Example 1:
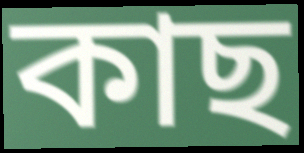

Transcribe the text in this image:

কাছ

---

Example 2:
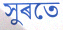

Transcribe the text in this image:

সুৰতে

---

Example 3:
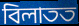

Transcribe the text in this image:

বিলাতত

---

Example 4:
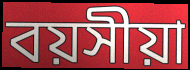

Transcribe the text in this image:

বয়সীয়া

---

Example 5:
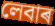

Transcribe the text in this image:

লেবাৰ